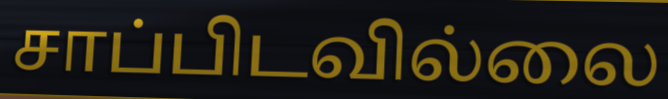
சாப்பிடவில்லை